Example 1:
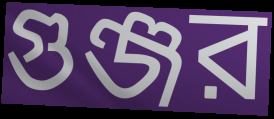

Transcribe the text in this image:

গুঞ্জর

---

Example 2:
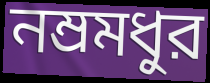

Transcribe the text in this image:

নম্রমধুর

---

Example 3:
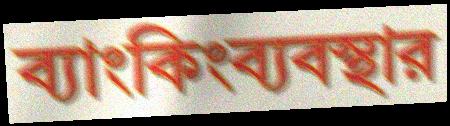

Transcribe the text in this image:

ব্যাংকিংব্যবস্থার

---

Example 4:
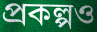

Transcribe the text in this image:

প্রকল্পও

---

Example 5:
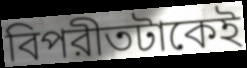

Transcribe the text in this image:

বিপরীতটাকেই